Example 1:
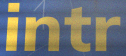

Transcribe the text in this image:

intr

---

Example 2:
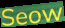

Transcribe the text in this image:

Seow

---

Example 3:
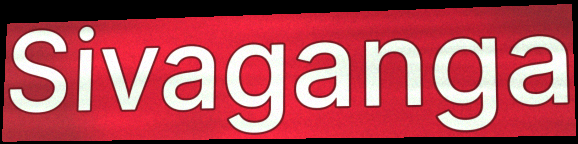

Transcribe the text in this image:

Sivaganga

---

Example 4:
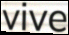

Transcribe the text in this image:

vive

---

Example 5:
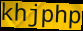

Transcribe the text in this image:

khjphp